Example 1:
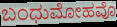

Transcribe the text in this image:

ಬಂಧುಮೋಹವೊ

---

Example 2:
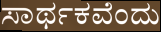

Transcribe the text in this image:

ಸಾರ್ಥಕವೆಂದು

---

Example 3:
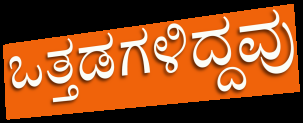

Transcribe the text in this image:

ಒತ್ತಡಗಳಿದ್ದವು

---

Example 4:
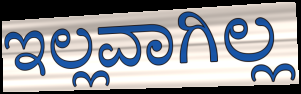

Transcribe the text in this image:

ಇಲ್ಲವಾಗಿಲ್ಲ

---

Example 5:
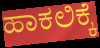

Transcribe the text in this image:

ಹಾಕಲಿಕ್ಕೆ